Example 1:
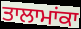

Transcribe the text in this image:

ਤਾਲਾਮਾਂਕਾ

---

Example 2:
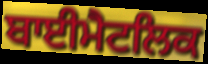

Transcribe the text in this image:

ਬਾਈਮੈਟਲਿਕ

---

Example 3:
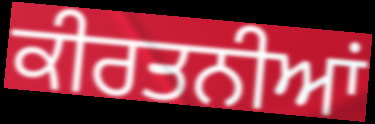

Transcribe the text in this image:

ਕੀਰਤਨੀਆਂ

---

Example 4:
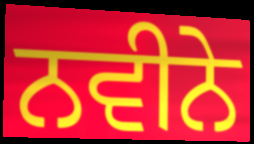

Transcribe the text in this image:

ਨਵੀਨੇ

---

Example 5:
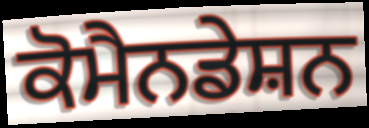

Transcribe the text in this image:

ਕੋਮੈਨਡੇਸ਼ਨ